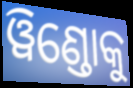
ୱିଣ୍ଡୋକୁ